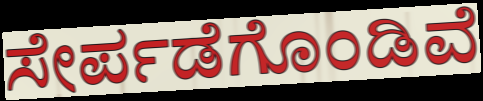
ಸೇರ್ಪಡೆಗೊಂಡಿವೆ